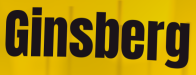
Ginsberg